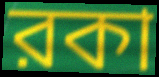
রকা